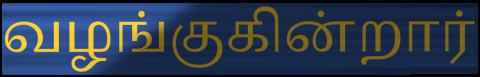
வழங்குகின்றார்